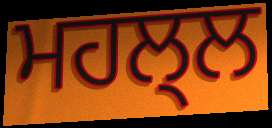
ਮਹਲ੍ਲ